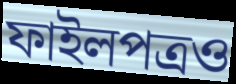
ফাইলপত্রও